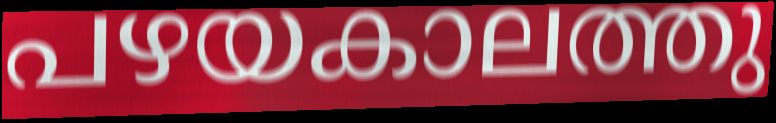
പഴയകാലത്തു